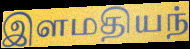
இளமதியந்